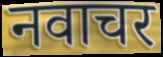
नवाचर